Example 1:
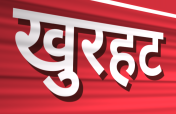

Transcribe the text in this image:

खुरहट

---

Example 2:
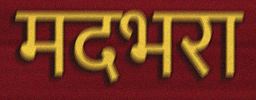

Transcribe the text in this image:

मदभरा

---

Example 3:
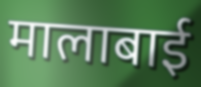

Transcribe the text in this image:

मालाबाई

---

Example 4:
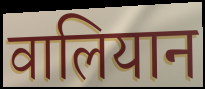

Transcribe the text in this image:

वालियान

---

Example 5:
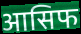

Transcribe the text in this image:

आसिफ